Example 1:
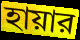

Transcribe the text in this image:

হায়ার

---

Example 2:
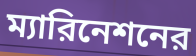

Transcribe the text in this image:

ম্যারিনেশনের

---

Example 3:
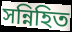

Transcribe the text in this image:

সন্নিহিত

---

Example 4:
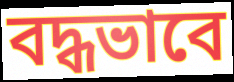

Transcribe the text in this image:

বদ্ধভাবে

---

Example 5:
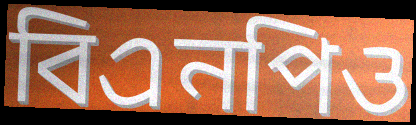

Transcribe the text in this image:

বিএনপিও